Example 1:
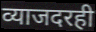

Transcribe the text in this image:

व्याजदरही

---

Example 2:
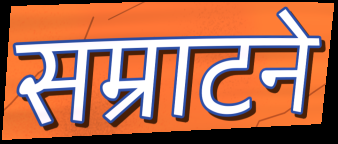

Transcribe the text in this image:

सम्राटने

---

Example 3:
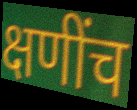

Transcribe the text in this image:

क्षणींच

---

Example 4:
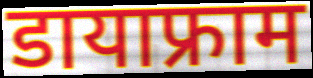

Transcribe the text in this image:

डायाफ्राम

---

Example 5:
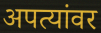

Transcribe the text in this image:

अपत्यांवर